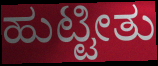
ಹುಟ್ಟೀತು